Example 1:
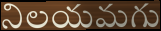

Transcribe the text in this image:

నిలయమగు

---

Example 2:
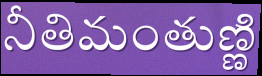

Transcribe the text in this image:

నీతిమంతుణ్ణి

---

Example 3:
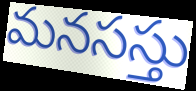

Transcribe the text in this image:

మనసస్తు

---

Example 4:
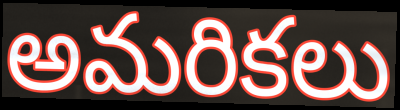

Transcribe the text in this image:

అమరికలు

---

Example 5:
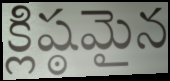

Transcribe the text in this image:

క్లిష్ఠమైన